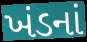
ખંડનાં